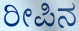
ರೀಪಿನ